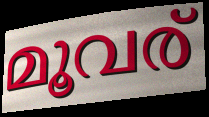
മൂവര്